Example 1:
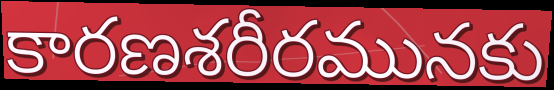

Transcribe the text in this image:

కారణశరీరమునకు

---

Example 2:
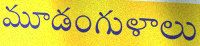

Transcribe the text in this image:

మూడంగుళాలు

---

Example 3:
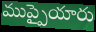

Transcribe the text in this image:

ముప్పైయారు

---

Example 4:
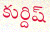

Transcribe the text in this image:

కుర్దిష్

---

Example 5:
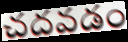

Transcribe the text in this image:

చదవడం